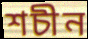
শচীন